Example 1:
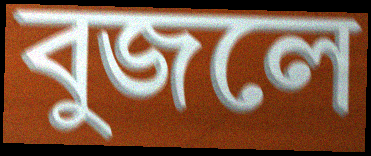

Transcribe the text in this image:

বুজলে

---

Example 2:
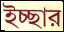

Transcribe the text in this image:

ইচ্ছার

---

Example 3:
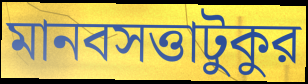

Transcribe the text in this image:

মানবসত্তাটুকুর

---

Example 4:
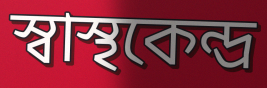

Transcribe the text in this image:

স্বাস্থকেন্দ্র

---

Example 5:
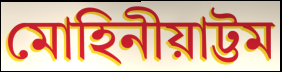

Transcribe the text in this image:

মোহিনীয়াট্টম